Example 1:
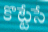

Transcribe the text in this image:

కొట్టేసే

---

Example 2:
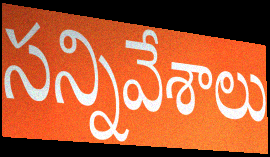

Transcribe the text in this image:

సన్నివేశాలు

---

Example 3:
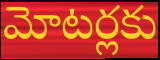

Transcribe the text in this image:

మోటర్లకు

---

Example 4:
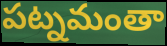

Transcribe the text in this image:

పట్నమంతా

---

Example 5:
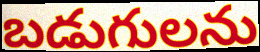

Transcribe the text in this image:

బడుగులను